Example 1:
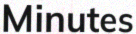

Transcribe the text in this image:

Minutes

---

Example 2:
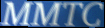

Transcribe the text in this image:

MMTC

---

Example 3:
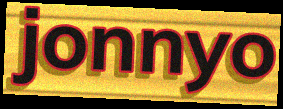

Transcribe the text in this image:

jonnyo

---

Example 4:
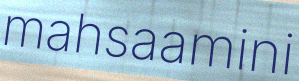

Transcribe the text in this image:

mahsaamini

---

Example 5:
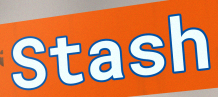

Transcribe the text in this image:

Stash